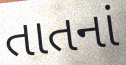
તાતનાં